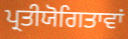
ਪ੍ਰਤੀਯੋਗਿਤਾਵਾਂ